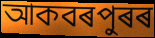
আকবৰপুৰৰ